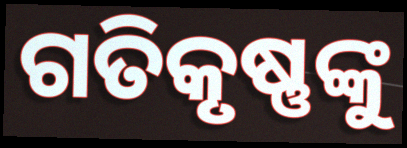
ଗତିକୃଷ୍ଣଙ୍କୁ